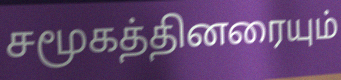
சமூகத்தினரையும்